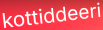
kottiddeeri